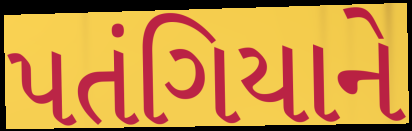
પતંગિયાને